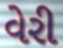
વેરી